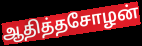
ஆதித்தசோழன்